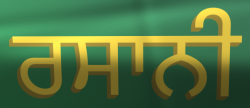
ਰਸਾਨੀ